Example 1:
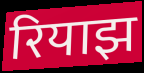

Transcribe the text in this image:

रियाझ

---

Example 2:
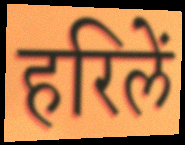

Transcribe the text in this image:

हरिलें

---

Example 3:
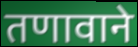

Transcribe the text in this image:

तणावाने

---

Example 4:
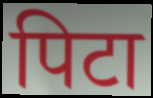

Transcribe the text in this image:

पिटा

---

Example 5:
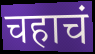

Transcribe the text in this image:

चहाचं